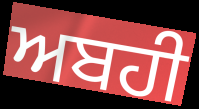
ਅਬਹੀ